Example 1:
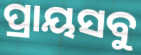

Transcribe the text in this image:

ପ୍ରାୟସବୁ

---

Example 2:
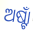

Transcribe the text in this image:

ଅଷ୍ଟାଁ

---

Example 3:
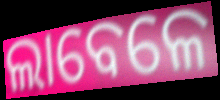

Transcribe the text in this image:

ଲାବେଳେ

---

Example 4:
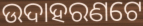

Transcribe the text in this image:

ଉଦାହରଣଟେ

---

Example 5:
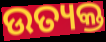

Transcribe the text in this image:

ଉତ୍ୟକ୍ତ